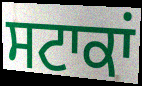
ਸਟਾਕਾਂ